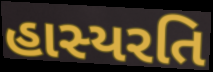
હાસ્યરતિ